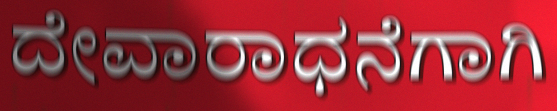
ದೇವಾರಾಧನೆಗಾಗಿ